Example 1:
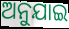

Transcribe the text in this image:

ଅନୁଯାଇ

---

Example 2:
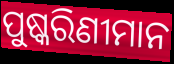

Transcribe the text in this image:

ପୁଷ୍କରିଣୀମାନ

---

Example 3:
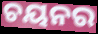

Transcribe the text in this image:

ଚୟନର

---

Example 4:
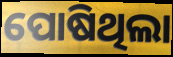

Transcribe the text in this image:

ପୋଷିଥିଲା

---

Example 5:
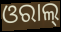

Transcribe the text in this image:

ଓରାଲ୍